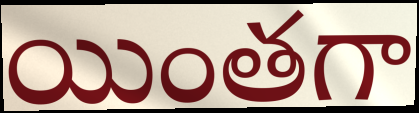
యింతగా